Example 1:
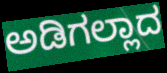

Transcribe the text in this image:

ಅಡಿಗಲ್ಲಾದ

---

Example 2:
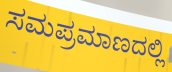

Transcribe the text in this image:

ಸಮಪ್ರಮಾಣದಲ್ಲಿ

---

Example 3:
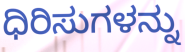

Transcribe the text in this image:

ಧಿರಿಸುಗಳನ್ನು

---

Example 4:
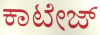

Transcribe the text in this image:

ಕಾಟೇಜ್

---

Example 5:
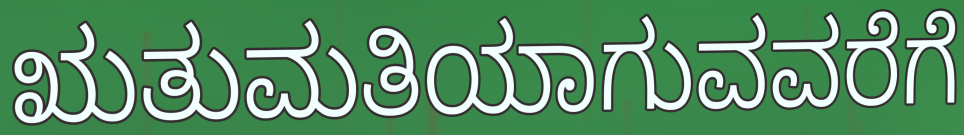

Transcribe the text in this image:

ಋತುಮತಿಯಾಗುವವರೆಗೆ